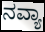
ನವ್ಯಾ